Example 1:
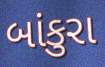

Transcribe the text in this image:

બાંકુરા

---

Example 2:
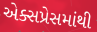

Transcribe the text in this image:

એક્સપ્રેસમાંથી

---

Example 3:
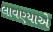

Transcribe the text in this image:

લાવણ્યાએ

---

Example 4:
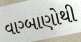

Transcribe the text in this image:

વાગ્બાણોથી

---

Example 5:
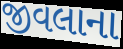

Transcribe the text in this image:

જીવલાના